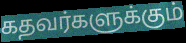
கதவர்களுக்கும்